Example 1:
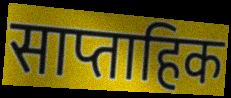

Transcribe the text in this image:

साप्ताहिक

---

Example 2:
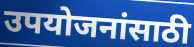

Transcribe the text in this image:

उपयोजनांसाठी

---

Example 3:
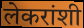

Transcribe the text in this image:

लेकरांशी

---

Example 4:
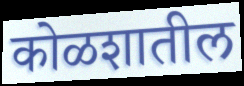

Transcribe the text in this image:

कोळशातील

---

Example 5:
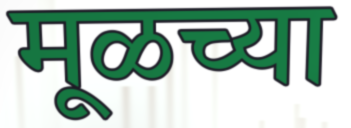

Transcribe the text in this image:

मूळच्या